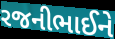
રજનીભાઈને